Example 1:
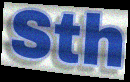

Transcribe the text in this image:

Sth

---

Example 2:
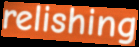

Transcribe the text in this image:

relishing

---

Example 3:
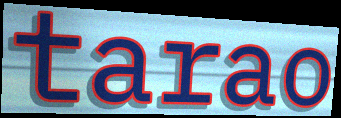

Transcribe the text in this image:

tarao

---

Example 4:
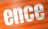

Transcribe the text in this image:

ence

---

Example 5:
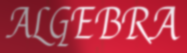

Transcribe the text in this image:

ALGEBRA